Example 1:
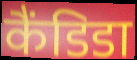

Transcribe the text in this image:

कैंडिडा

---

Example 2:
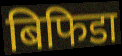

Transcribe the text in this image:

बिफिडा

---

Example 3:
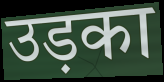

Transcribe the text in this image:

उड़का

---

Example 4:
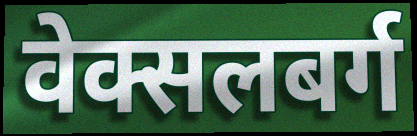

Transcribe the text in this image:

वेक्सलबर्ग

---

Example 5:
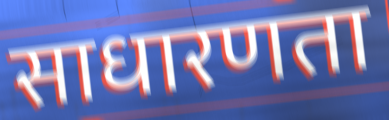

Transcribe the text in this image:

साधारणता